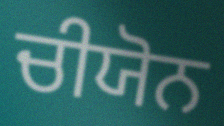
ਚੀਯੋਨ